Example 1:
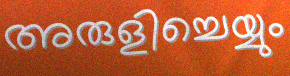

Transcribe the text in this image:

അരുളിച്ചെയ്യും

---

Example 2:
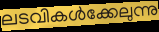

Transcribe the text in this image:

ലടവികൾക്കേലുന്നു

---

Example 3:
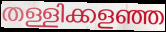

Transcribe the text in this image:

തള്ളിക്കളഞ്ഞ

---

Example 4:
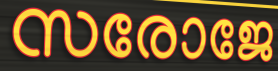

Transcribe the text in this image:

സരോജേ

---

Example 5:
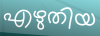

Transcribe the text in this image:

എഴുതിയ